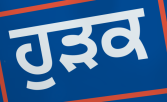
ਹੁੜਕ